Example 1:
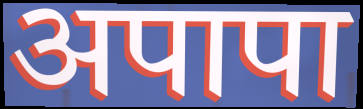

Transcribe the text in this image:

अपापा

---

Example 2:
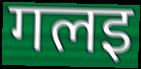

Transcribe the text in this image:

गलइ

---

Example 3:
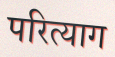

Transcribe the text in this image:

परित्याग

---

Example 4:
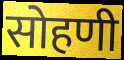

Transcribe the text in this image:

सोहणी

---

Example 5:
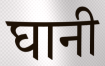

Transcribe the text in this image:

घानी